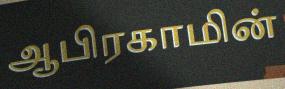
ஆபிரகாமின்